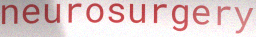
neurosurgery